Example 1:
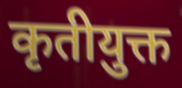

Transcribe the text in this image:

कृतीयुक्त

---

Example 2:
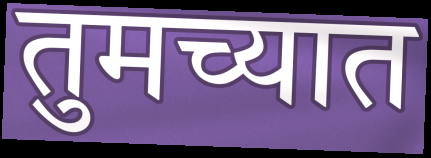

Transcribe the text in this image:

तुमच्यात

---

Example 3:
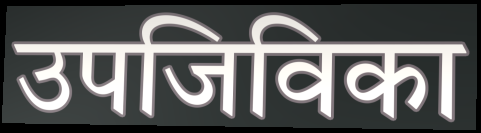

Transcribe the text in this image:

उपजिविका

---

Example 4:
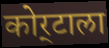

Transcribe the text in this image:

कोर्टाला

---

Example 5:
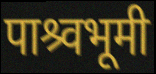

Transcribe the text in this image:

पाश्र्वभूमी